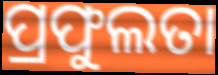
ପ୍ରଫୁଲତା